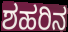
ಶಹರಿನ